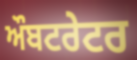
ਔਬਟਰੇਟਰ